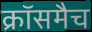
क्रॉसमैच